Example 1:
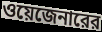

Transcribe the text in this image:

ওয়েজেনারের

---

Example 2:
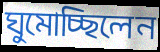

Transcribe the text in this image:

ঘুমোচ্ছিলেন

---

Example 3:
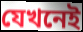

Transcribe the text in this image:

যেখনেই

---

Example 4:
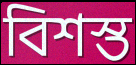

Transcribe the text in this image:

বিশস্ত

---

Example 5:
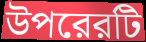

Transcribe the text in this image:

উপরেরটি